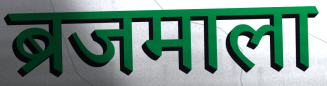
ब्रजमाला